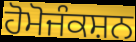
ਹੋਮੋਜੰਕਸ਼ਨ